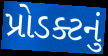
પ્રોડક્ટનું